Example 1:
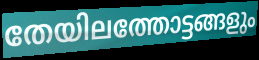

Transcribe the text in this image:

തേയിലത്തോട്ടങ്ങളും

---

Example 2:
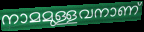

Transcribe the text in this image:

നാമമുള്ളവനാണ്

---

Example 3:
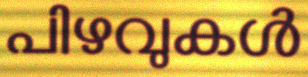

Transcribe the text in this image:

പിഴവുകൾ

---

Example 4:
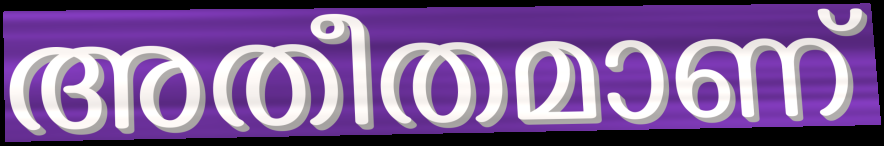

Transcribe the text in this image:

അതീതമാണ്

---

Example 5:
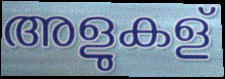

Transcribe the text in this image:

അളുകള്